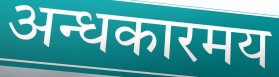
अन्धकारमय